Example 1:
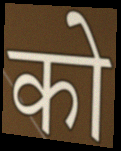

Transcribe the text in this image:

को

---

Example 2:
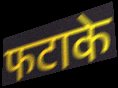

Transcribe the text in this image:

फटाके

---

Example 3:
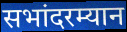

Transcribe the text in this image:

सभांदरम्यान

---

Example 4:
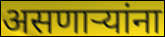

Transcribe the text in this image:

असणाऱ्यांना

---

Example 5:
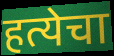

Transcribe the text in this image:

हत्येचा